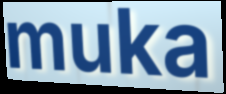
muka